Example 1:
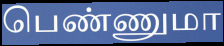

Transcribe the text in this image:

பெண்ணுமா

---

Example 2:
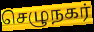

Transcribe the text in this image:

செழுநகர்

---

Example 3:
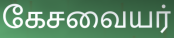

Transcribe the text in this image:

கேசவையர்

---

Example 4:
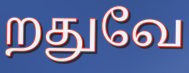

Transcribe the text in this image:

றதுவே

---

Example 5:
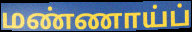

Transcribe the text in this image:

மண்ணாய்ப்